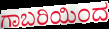
ಗಾಬರಿಯಿಂದ